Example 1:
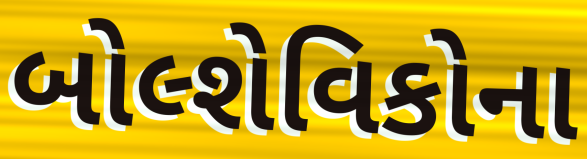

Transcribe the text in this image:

બોલ્શેવિકોના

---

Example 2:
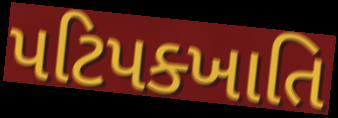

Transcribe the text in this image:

પટિપક્ખાતિ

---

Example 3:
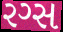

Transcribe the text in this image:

રગ્સ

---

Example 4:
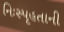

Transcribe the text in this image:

નિઃસ્પૃહતાની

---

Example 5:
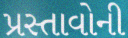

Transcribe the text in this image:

પ્રસ્તાવોની